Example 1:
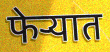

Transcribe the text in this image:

फेऱ्यात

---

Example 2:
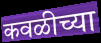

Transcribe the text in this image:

कवळीच्या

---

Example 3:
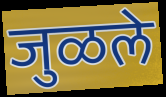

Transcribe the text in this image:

जुळले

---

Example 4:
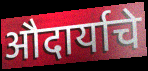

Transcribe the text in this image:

औदार्याचे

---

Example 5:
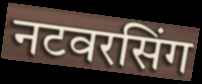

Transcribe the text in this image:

नटवरसिंग